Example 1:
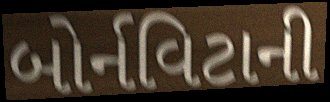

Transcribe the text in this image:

બોર્નવિટાની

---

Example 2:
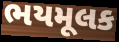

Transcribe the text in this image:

ભયમૂલક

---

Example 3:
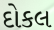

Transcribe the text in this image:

દોકલ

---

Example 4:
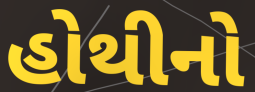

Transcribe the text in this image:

હોથીનો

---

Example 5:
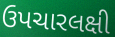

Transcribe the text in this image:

ઉપચારલક્ષી